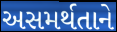
અસમર્થતાને